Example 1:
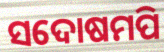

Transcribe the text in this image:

ସଦୋଷମପି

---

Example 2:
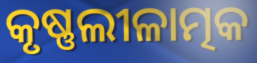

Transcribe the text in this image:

କୃଷ୍ଣଲୀଳାତ୍ମକ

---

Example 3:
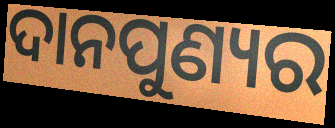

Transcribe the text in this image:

ଦାନପୁଣ୍ୟର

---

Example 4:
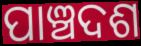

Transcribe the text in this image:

ପାଞ୍ଚଦଶ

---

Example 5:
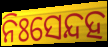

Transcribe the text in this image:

ନିଃସେନ୍ଦହ